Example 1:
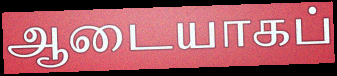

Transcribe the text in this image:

ஆடையாகப்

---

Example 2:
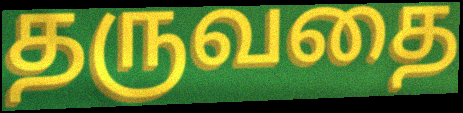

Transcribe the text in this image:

தருவதை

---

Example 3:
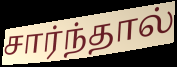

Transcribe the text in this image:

சார்ந்தால்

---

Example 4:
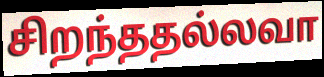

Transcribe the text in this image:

சிறந்ததல்லவா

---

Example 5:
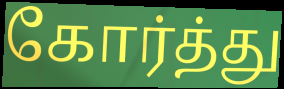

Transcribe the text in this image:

கோர்த்து